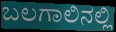
ಬಲಗಾಲಿನಲ್ಲಿ